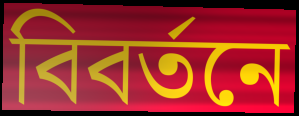
বিবর্তনে